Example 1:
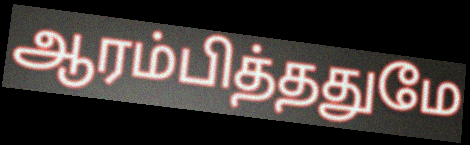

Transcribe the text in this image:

ஆரம்பித்ததுமே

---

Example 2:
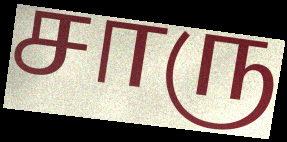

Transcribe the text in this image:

சாரு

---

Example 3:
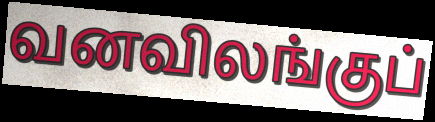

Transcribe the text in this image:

வனவிலங்குப்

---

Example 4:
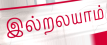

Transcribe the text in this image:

இல்றலயாம்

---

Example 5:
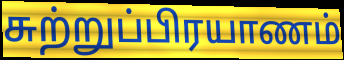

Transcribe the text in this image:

சுற்றுப்பிரயாணம்